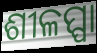
ଶୀଳପ୍ପା